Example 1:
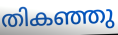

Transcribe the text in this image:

തികഞ്ഞു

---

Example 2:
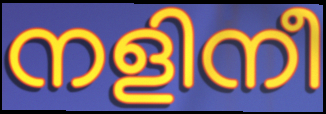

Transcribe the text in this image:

നളിനീ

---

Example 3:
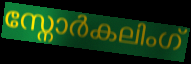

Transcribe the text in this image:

സ്നോർകലിംഗ്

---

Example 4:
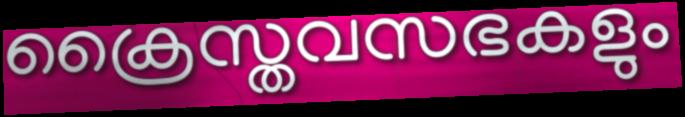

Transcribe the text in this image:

ക്രൈസ്തവസഭകളും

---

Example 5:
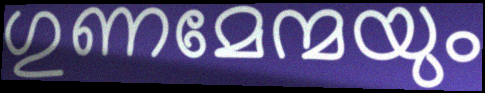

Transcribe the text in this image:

ഗുണമേന്മയും